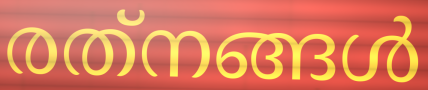
രത്‌നങ്ങൾ